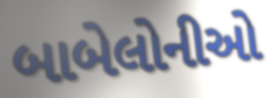
બાબેલોનીઓ